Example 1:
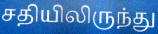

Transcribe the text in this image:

சதியிலிருந்து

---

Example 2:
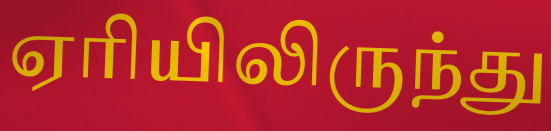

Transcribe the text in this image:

ஏரியிலிருந்து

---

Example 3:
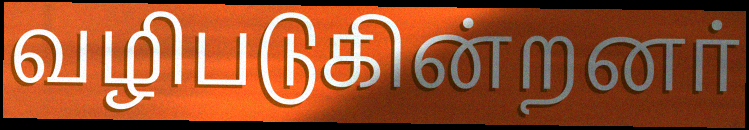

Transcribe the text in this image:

வழிபடுகின்றனர்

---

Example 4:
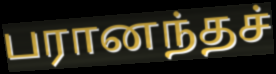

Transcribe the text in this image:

பரானந்தச்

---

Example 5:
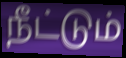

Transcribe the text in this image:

நீட்டும்